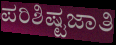
ಪರಿಶಿಷ್ಟಜಾತಿ